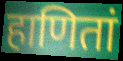
हाणितां